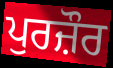
ਪੁਰਜ਼ੌਰ